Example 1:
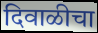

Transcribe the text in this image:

दिवाळीचा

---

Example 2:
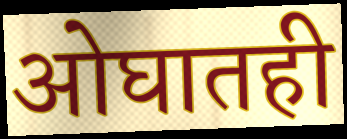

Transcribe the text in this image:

ओघातही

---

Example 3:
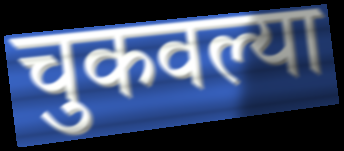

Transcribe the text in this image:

चुकवल्या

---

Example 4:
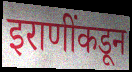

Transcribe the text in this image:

इराणींकडून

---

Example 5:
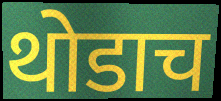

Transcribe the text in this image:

थोडाच